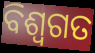
ବିଶ୍ୱଗତ